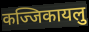
कज्जिकायलु